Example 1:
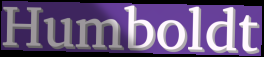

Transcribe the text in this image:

Humboldt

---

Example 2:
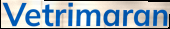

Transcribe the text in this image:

Vetrimaran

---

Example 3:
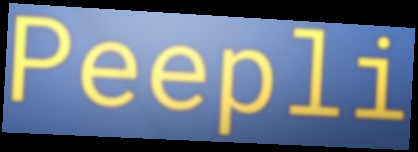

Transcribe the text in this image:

Peepli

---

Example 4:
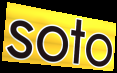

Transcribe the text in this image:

soto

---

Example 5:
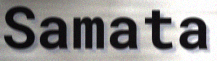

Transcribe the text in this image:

Samata